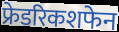
फ्रेडरिकशफेन